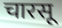
चारसू